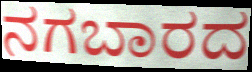
ನಗಬಾರದ